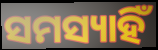
ସମସ୍ୟାହିଁ